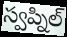
స్వప్నిల్